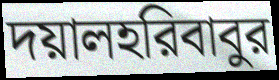
দয়ালহরিবাবুর